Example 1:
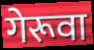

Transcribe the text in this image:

गेरूवा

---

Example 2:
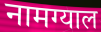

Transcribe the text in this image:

नामग्याल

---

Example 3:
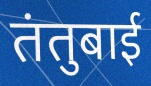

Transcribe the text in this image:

तंतुबाई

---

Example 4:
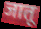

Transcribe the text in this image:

जातू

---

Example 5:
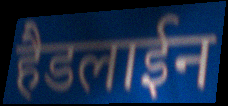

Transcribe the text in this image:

हैडलाईन